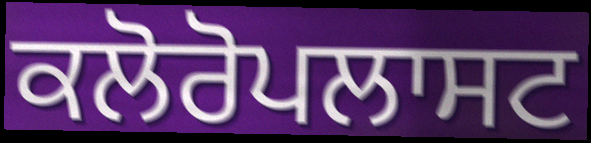
ਕਲੋਰੋਪਲਾਸਟ